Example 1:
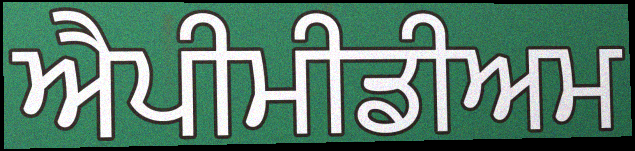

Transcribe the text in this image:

ਐਪੀਮੀਡੀਅਮ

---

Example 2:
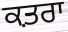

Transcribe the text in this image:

ਕ਼ਤਰਾ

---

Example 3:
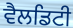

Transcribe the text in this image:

ਵੈਲਡਿਟੀ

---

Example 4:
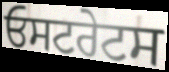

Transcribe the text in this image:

ਓਸਟਰੇਟਸ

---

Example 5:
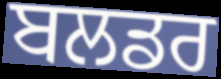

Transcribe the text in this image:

ਬਲਡਰ